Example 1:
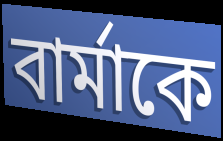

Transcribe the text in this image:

বার্মাকে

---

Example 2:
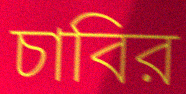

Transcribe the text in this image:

চাবির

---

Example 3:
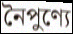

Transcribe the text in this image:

নৈপুণ্যে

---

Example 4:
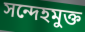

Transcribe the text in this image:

সন্দেহমুক্ত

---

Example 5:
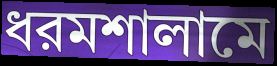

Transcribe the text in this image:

ধরমশালামে